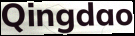
Qingdao